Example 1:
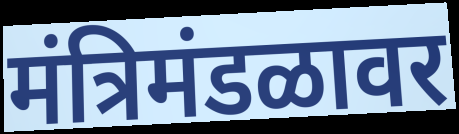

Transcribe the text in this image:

मंत्रिमंडळावर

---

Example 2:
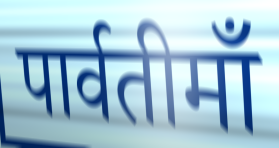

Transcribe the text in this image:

पार्वतीमाँ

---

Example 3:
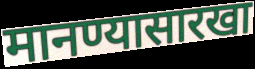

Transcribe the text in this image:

मानण्यासारखा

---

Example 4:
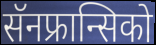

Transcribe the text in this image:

सॅनफ्रान्सिको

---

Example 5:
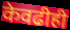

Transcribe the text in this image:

केवढीही